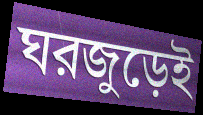
ঘরজুড়েই